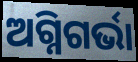
ଅଗ୍ନିଗର୍ଭା